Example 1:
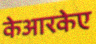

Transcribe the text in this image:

केआरकेए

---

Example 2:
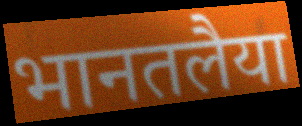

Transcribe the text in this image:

भानतलैया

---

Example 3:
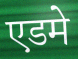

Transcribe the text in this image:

एडमे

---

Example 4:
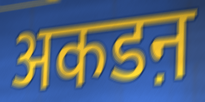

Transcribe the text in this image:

अकडऩ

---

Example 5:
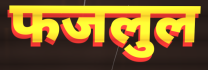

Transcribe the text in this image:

फजलुल